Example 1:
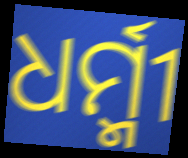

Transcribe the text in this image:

ଧର୍ମ୍ମୀ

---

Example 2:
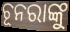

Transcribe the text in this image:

ଚୂନରାଙ୍କୁ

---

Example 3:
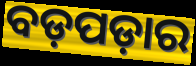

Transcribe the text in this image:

ବଡ଼ପଡ଼ାର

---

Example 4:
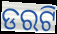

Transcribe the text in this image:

ଡରଟି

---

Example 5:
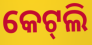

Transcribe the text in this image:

କେଟ୍‌ଲି